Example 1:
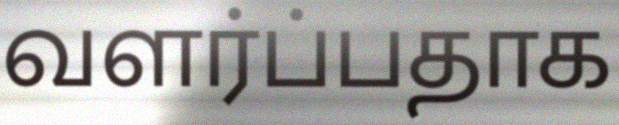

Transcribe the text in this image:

வளர்ப்பதாக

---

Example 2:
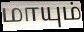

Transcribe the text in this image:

மாயும்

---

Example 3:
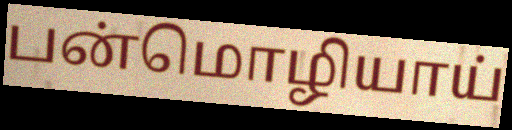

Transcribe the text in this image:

பன்மொழியாய்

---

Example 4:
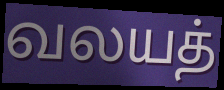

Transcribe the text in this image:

வலயத்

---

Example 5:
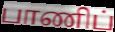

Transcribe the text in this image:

பாணிப்